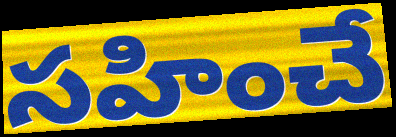
సహించే